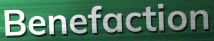
Benefaction